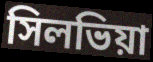
সিলভিয়া